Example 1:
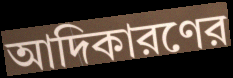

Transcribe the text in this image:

আদিকারণের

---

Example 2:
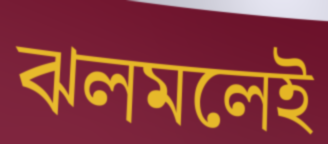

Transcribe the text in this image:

ঝলমলেই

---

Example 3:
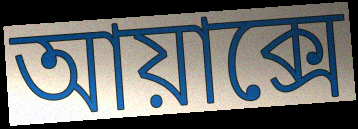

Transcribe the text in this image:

আয়াক্সে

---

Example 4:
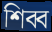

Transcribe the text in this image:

শিব্ব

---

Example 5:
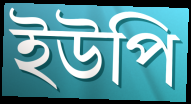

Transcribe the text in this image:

ইউপি